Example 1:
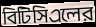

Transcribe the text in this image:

বিটিসিএলের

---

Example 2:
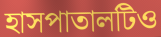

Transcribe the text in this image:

হাসপাতালটিও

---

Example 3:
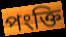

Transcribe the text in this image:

পংক্তি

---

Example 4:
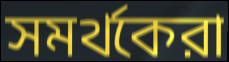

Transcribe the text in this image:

সমর্থকেরা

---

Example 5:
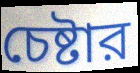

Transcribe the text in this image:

চেষ্টার